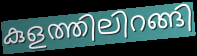
കുളത്തിലിറങ്ങി